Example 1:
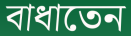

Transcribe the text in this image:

বাধাতেন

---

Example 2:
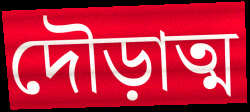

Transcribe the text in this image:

দৌড়াত্ম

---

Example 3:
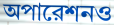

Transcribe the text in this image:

অপারেশনও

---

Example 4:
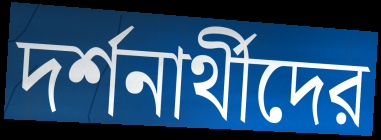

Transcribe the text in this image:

দর্শনার্থীদের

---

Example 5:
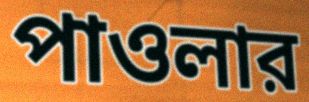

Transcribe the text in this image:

পাওলার